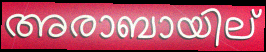
അരാബായില്